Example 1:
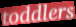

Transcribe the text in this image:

toddlers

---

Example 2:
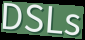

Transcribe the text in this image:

DSLs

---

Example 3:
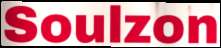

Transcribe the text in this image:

Soulzon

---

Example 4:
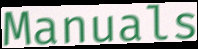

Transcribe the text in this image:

Manuals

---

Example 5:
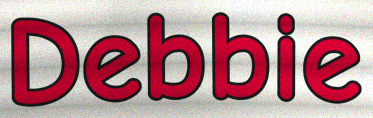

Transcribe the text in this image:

Debbie